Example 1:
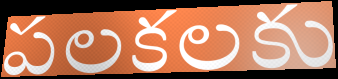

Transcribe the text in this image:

పలకలకు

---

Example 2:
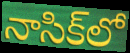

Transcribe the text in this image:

నాసిక్‌లో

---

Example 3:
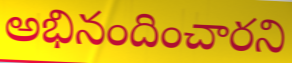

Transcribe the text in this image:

అభినందించారని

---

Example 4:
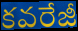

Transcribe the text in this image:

కవరేజీ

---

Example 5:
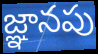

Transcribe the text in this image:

జ్ఞానపు